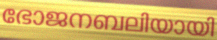
ഭോജനബലിയായി